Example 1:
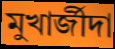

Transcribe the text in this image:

মুখার্জীদা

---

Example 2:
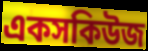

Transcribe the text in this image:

একসকিউজ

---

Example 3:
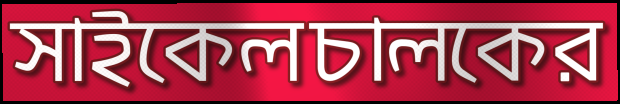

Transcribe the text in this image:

সাইকেলচালকের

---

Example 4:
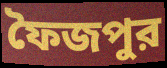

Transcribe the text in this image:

ফৈজপুর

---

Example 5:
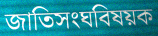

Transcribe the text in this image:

জাতিসংঘবিষয়ক